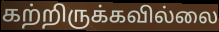
கற்றிருக்கவில்லை